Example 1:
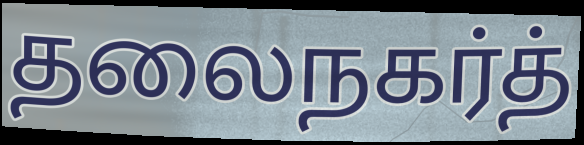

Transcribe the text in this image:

தலைநகர்த்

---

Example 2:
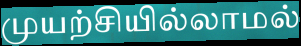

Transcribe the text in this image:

முயற்சியில்லாமல்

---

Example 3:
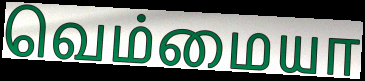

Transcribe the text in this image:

வெம்மையா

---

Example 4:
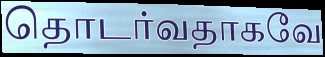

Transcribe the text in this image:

தொடர்வதாகவே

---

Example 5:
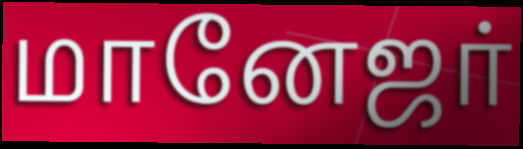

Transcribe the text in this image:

மானேஜர்